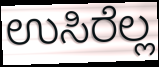
ಉಸಿರೆಲ್ಲ